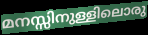
മനസ്സിനുള്ളിലൊരു